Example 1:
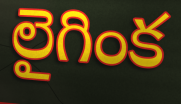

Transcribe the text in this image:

లైగింక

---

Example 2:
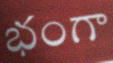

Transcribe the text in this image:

భంగా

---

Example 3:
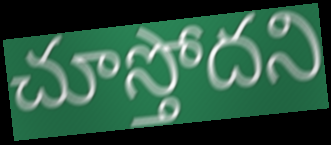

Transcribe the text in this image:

చూస్తోదని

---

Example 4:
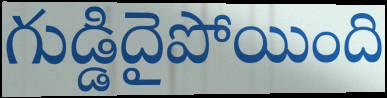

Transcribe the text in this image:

గుడ్డిదైపోయింది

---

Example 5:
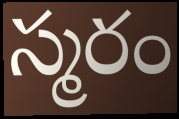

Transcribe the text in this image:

స్మరం